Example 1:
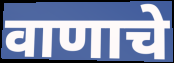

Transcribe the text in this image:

वाणाचे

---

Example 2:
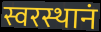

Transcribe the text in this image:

स्वरस्थानं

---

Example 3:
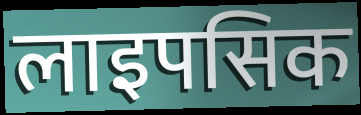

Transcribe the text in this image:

लाइपसिक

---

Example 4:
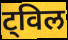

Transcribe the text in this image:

ट्विल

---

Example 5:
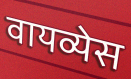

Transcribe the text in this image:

वायव्येस